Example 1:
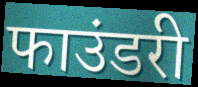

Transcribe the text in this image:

फाउंडरी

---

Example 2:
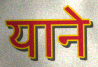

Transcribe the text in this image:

याने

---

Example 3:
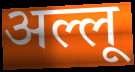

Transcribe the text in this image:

अल्लू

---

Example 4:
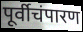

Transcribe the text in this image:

पूर्वीचंपारण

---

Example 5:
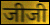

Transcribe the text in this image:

जीजी